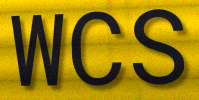
WCS